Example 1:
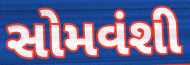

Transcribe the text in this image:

સોમવંશી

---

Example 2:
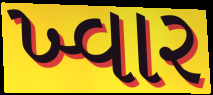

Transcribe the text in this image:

ખ્વાર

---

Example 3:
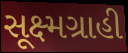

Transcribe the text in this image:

સૂક્ષ્મગ્રાહી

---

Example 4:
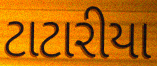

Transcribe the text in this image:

ટાટારીયા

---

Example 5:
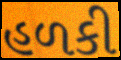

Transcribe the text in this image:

હળકી